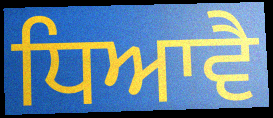
ਧਿਆਵੈ